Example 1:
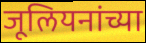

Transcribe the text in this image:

जूलियनांच्या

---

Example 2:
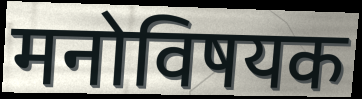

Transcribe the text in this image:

मनोविषयक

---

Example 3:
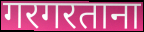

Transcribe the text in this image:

गरगरताना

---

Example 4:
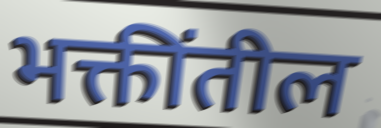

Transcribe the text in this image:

भक्तींतील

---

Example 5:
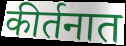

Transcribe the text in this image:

कीर्तनात